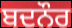
ਬਦਨੌਰ